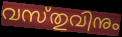
വസ്‌തുവിനും